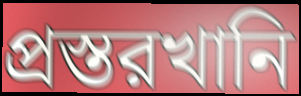
প্রস্তরখানি